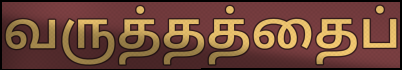
வருத்தத்தைப்